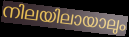
നിലയിലായാലും